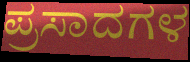
ಪ್ರಸಾದಗಳ